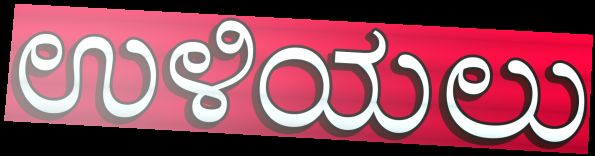
ಉಳಿಯಲು